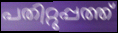
പതിറ്റുപ്പത്ത്